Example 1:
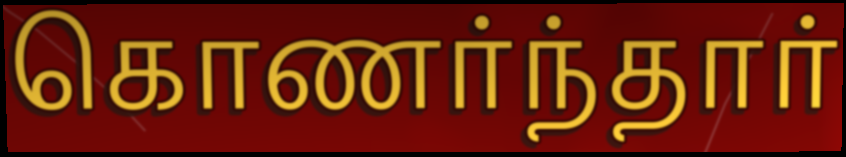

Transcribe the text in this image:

கொணர்ந்தார்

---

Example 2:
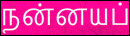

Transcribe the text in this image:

நன்னயப்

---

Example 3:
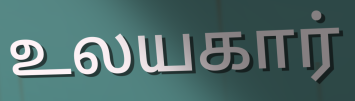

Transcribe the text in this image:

உலயகார்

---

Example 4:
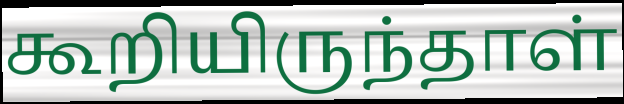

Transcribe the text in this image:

கூறியிருந்தாள்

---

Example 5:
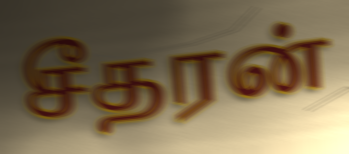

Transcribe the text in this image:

சீதரன்